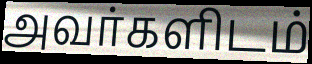
அவர்களிடம்